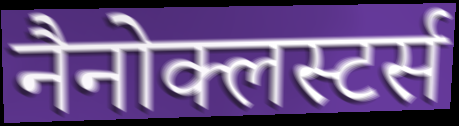
नैनोक्लस्टर्स